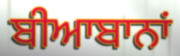
ਬੀਆਬਾਨਾਂ